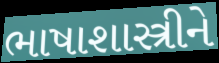
ભાષાશાસ્ત્રીને